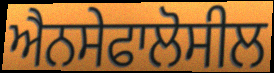
ਐਨਸੇਫਾਲੋਸੀਲ